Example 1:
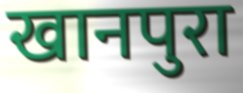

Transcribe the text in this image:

खानपुरा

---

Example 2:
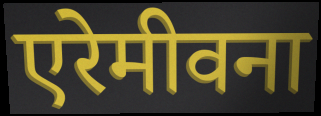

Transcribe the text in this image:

एरेमीवना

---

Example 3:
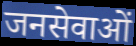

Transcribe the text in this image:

जनसेवाओं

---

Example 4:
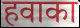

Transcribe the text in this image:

हवाका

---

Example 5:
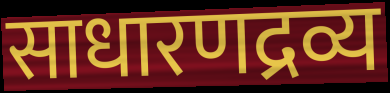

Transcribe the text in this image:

साधारणद्रव्य